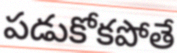
పడుకోకపోతే